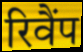
रिवैंप